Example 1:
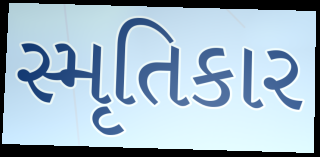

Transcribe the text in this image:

સ્મૃતિકાર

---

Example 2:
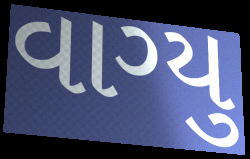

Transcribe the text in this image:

વાગ્યુ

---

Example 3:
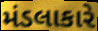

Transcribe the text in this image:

મંડલાકારે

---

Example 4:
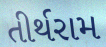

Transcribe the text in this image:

તીર્થરામ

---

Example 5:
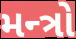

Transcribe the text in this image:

મન્ત્રો